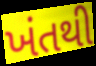
ખંતથી